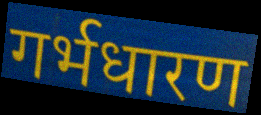
गर्भधारण